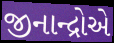
જીનાન્દ્રોએ